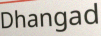
Dhangad